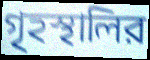
গৃহস্থালির